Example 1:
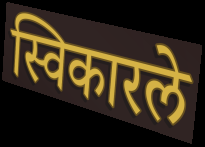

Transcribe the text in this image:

स्विकारले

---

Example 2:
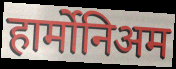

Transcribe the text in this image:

हार्मोनिअम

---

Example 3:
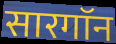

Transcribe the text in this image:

सारगॉन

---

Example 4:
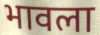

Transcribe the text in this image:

भावला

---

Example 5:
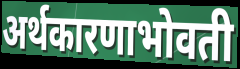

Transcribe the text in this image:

अर्थकारणाभोवती